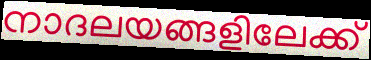
നാദലയങ്ങളിലേക്ക്